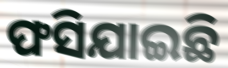
ଫସିଯାଇଛି